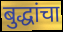
बुद्धांचा